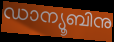
ഡാന്യൂബിനു